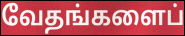
வேதங்களைப்